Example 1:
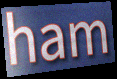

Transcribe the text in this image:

ham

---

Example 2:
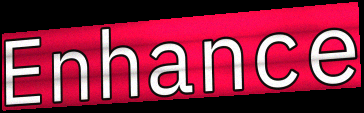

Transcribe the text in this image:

Enhance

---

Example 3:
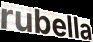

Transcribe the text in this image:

rubella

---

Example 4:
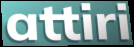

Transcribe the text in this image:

attiri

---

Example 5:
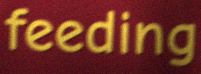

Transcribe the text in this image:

feeding